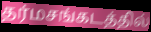
தர்மசங்கடத்தில்